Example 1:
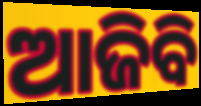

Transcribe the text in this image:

ଆଜିବି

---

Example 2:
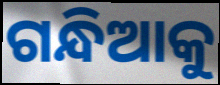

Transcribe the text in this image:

ଗନ୍ଧିଆକୁ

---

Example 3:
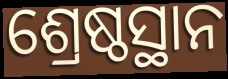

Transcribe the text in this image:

ଶ୍ରେଷ୍ଠସ୍ଥାନ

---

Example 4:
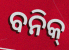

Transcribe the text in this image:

ବନିକ୍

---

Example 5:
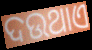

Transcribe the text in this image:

ଦଉଥାଏ